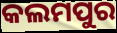
କଲମପୁର